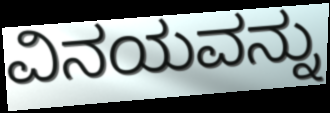
ವಿನಯವನ್ನು